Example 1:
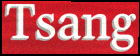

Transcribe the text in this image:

Tsang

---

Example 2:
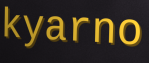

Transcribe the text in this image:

kyarno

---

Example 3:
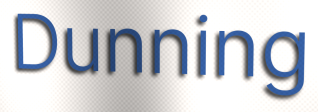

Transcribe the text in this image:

Dunning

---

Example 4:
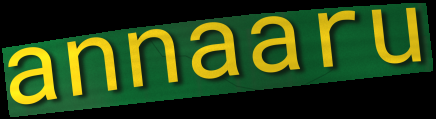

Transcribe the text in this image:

annaaru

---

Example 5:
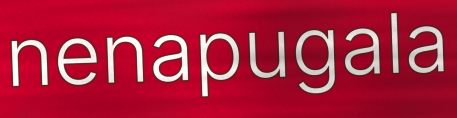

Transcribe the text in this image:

nenapugala